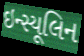
ઇન્સ્યૂલિન